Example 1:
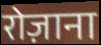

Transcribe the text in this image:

रोज़ाना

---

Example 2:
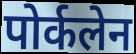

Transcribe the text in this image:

पोर्कलेन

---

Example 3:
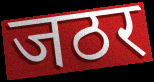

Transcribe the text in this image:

जठर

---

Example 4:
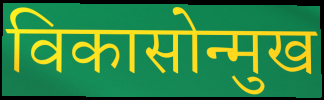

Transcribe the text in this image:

विकासोन्मुख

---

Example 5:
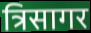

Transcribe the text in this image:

त्रिसागर